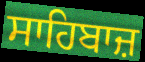
ਸਾਹਿਬਾਜ਼